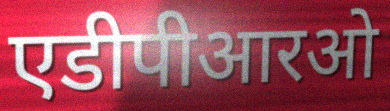
एडीपीआरओ